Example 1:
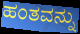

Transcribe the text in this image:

ಹಂತವನ್ನು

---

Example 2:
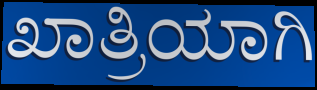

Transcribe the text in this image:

ಖಾತ್ರಿಯಾಗಿ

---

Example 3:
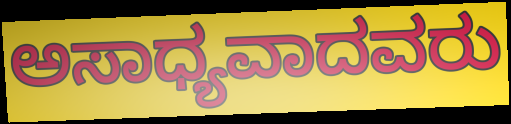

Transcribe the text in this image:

ಅಸಾಧ್ಯವಾದವರು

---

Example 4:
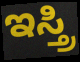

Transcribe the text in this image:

ಇಸ್ತ್ರಿ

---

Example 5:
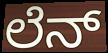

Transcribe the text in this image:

ಲೆನ್